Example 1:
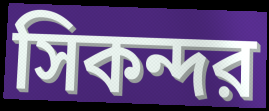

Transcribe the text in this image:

সিকন্দর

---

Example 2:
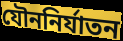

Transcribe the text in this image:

যৌননির্যাতন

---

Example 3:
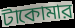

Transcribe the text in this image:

টাকোমার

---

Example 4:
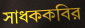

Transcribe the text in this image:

সাধককবির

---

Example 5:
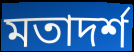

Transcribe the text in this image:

মতাদর্শ